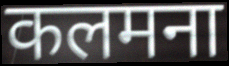
कलमना